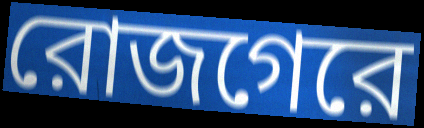
রোজগেরে